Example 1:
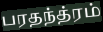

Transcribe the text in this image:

பரதந்த்ரம்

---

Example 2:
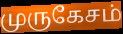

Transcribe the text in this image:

முருகேசம்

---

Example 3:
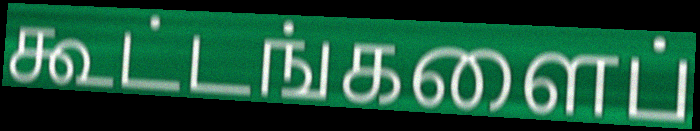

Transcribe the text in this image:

கூட்டங்களைப்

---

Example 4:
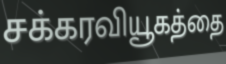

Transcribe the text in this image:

சக்கரவியூகத்தை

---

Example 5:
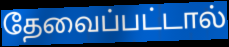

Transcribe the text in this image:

தேவைப்பட்டால்